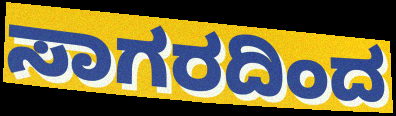
ಸಾಗರದಿಂದ